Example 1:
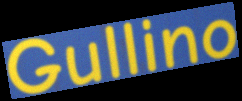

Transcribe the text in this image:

Gullino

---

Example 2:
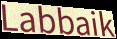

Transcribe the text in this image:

Labbaik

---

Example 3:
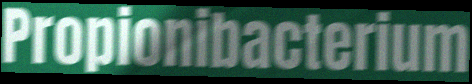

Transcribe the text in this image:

Propionibacterium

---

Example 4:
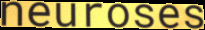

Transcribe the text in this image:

neuroses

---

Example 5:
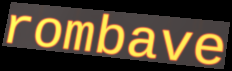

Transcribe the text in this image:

rombave